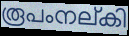
രൂപംനല്കി